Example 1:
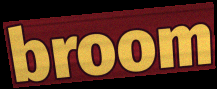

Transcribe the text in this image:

broom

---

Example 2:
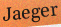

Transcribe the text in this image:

Jaeger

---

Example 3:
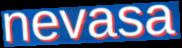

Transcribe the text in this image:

nevasa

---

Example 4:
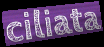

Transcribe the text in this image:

ciliata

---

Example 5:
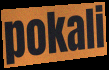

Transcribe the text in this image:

pokali